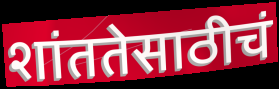
शांततेसाठीचं